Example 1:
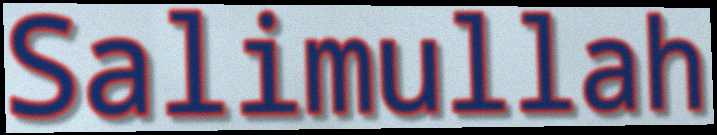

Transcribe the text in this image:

Salimullah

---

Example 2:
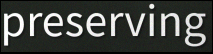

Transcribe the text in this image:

preserving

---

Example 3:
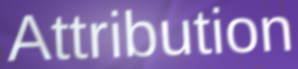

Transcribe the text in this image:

Attribution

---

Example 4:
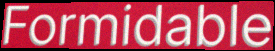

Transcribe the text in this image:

Formidable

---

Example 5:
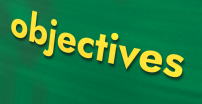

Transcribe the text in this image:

objectives